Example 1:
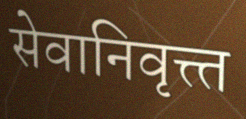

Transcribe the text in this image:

सेवानिवृत्त्त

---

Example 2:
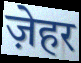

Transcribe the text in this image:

ज़ेहर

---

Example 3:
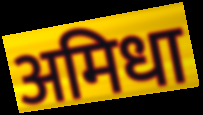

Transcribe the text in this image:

अमिधा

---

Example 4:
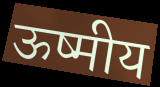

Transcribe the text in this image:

ऊष्मीय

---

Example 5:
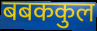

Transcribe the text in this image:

बबककुल